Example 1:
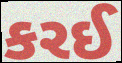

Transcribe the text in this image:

કરઈ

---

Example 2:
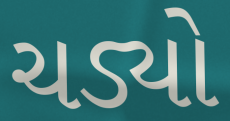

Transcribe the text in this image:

ચડ્યો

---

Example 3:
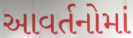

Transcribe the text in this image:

આવર્તનોમાં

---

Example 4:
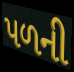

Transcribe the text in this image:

પળની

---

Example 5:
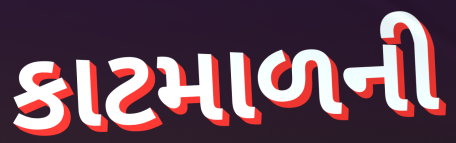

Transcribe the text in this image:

કાટમાળની